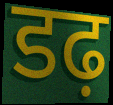
डढ़